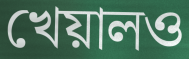
খেয়ালও